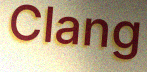
Clang